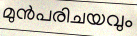
മുൻപരിചയവും